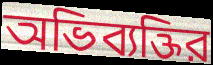
অভিব্যক্তির